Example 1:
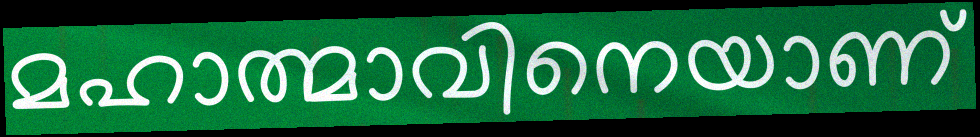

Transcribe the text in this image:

മഹാത്മാവിനെയാണ്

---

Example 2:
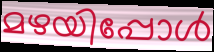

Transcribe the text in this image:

മഴയിപ്പോൾ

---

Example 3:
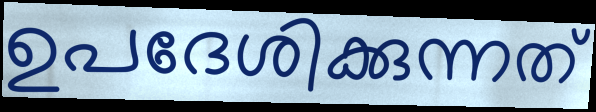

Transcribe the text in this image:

ഉപദേശിക്കുന്നത്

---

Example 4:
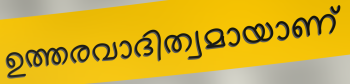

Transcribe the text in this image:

ഉത്തരവാദിത്വമായാണ്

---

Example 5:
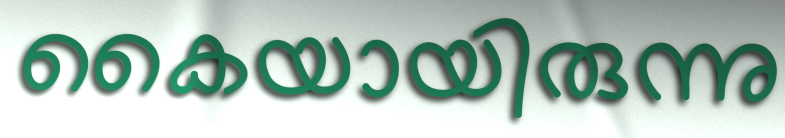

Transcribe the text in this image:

കൈയായിരുന്നു